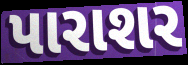
પારાશર